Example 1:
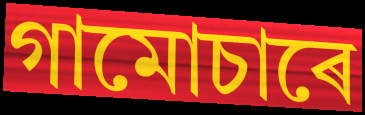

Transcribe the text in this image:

গামোচাৰে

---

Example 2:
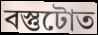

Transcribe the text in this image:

বস্তুটোত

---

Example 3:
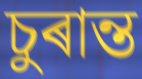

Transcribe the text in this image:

চুৰান্ত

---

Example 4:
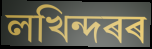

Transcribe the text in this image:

লখিন্দৰৰ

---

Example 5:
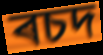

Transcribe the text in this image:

ৰচদ